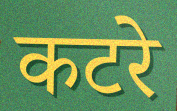
कटरे